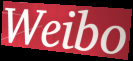
Weibo